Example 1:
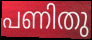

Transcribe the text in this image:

പണിതു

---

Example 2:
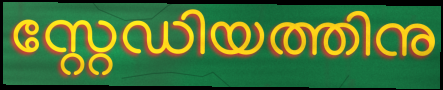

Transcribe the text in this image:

സ്റ്റേഡിയത്തിനു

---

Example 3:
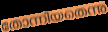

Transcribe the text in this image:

തോന്നിയതെന്നു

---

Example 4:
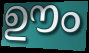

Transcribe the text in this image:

ഊം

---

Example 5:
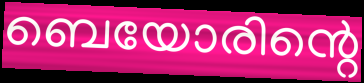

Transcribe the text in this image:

ബെയോരിന്റെ